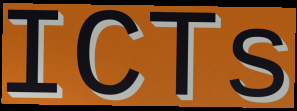
ICTs